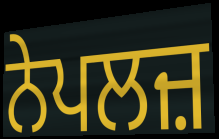
ਨੇਪਲਜ਼